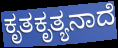
ಕೃತಕೃತ್ಯನಾದೆ